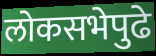
लोकसभेपुढे